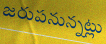
జరుపనున్నట్లు